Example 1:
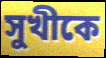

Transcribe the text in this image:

সুখীকে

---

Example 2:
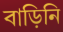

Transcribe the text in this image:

বাড়িনি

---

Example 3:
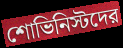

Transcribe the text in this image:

শোভিনিস্টদের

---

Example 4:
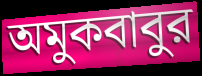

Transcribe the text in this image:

অমুকবাবুর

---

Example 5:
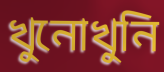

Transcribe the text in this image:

খুনোখুনি